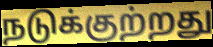
நடுக்குற்றது